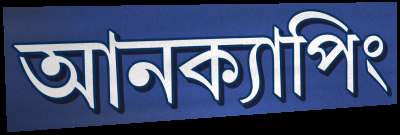
আনক্যাপিং